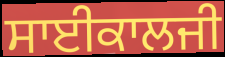
ਸਾਈਕਾਲਜੀ